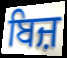
ਬਿਜ਼